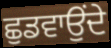
ਛੁਡਵਾਉਂਦੇ